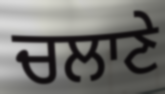
ਚਲਾਣੇ